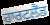
ਹਾਰਟਲੈਂਡ